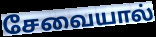
சேவையால்